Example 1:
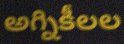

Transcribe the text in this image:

అగ్నికీలల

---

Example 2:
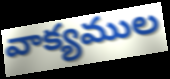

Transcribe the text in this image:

వాక్యముల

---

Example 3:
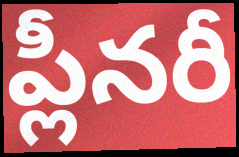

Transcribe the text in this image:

ప్లీనరీ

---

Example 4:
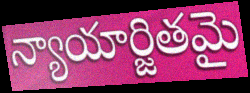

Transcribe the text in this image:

న్యాయార్జితమై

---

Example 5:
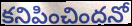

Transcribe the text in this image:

కనిపించిందనో